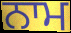
ਨਾਮ